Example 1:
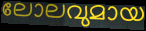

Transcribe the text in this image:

ലോലവുമായ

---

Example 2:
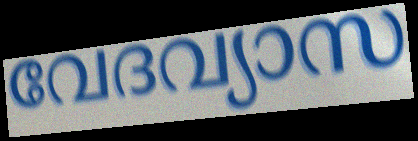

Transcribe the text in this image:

വേദവ്യാസ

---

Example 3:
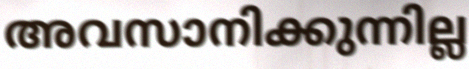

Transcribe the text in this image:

അവസാനിക്കുന്നില്ല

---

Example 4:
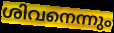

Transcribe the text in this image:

ശിവനെന്നും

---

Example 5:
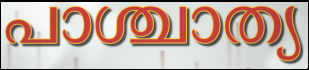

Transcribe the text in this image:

പാശ്ചാത്യ